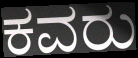
ಕವರು